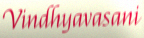
Vindhyavasani